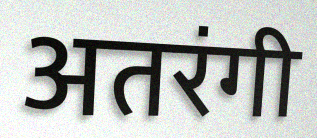
अतरंगी